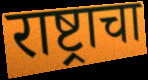
राष्ट्राचा